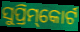
ସୁପ୍ରିମ୍‌କୋର୍ଟ